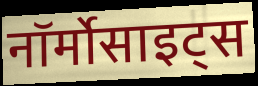
नॉर्मोसाइट्स